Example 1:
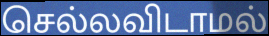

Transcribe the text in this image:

செல்லவிடாமல்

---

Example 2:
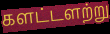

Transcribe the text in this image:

களட்டளற்று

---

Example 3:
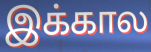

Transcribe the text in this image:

இக்கால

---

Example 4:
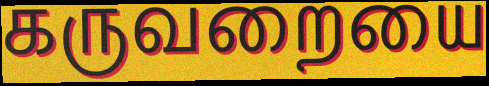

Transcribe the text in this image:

கருவறையை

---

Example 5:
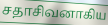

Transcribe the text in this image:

சதாசிவனாகிய